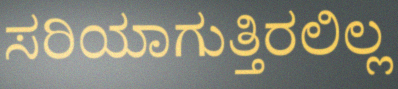
ಸರಿಯಾಗುತ್ತಿರಲಿಲ್ಲ